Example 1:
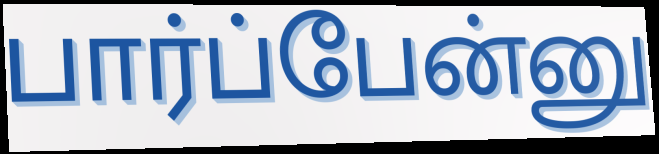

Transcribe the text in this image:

பார்ப்பேன்னு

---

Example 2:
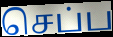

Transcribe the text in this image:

செப்ப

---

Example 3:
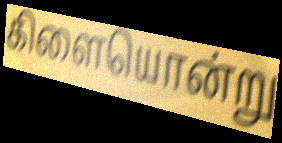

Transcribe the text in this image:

கிளையொன்று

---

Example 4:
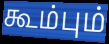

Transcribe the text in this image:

கூம்பும்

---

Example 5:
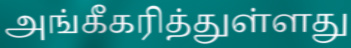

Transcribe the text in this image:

அங்கீகரித்துள்ளது